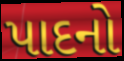
પાદનો